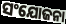
ସଂଯୋଜନା